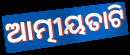
ଆତ୍ମୀୟତାଟି